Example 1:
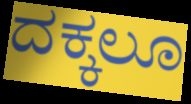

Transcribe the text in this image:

ದಕ್ಕಲೂ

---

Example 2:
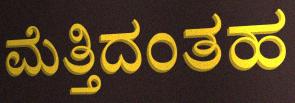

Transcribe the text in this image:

ಮೆತ್ತಿದಂತಹ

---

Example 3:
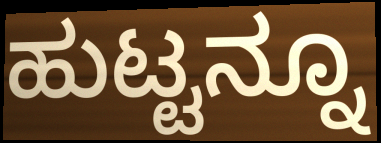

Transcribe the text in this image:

ಹುಟ್ಟನ್ನೂ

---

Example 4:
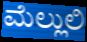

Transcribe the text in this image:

ಮೆಲ್ಲುಲಿ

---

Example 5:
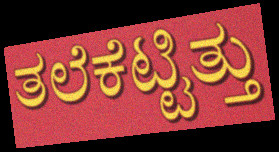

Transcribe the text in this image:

ತಲೆಕೆಟ್ಟಿತ್ತು